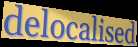
delocalised